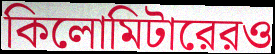
কিলোমিটারেরও